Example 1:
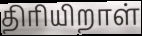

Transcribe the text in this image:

திரியிறாள்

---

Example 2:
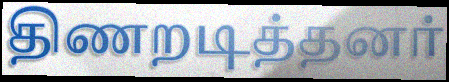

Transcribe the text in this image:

திணறடித்தனர்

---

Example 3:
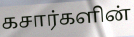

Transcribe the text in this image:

கசார்களின்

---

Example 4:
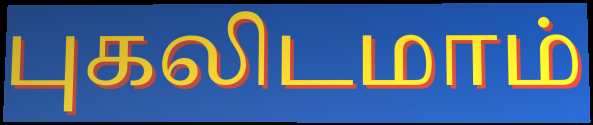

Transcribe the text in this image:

புகலிடமாம்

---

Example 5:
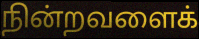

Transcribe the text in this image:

நின்றவளைக்